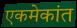
एकमेकांत